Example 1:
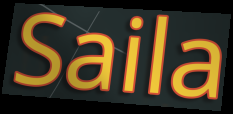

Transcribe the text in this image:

Saila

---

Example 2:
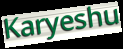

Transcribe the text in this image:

Karyeshu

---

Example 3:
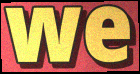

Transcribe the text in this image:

we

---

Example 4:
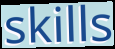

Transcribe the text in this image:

skills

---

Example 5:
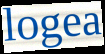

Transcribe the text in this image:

logea